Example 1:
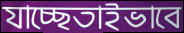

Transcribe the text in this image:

যাচ্ছেতাইভাবে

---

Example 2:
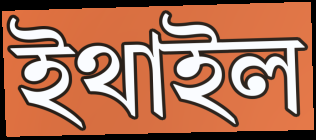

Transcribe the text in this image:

ইথাইল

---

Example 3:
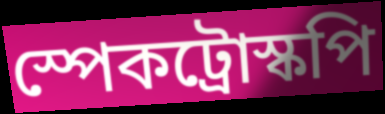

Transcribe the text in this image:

স্পেকট্রোস্কপি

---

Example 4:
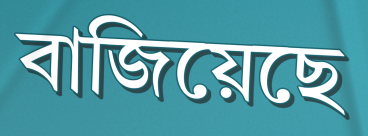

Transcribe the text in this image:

বাজিয়েছে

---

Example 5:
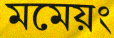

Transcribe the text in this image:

মমেয়ং